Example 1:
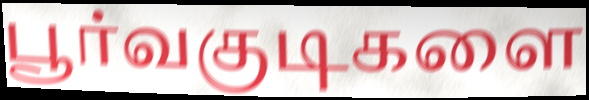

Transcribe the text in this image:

பூர்வகுடிகளை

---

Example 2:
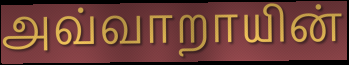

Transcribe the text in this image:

அவ்வாறாயின்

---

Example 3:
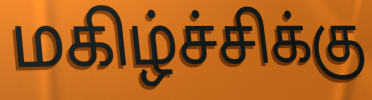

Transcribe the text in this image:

மகிழ்ச்சிக்கு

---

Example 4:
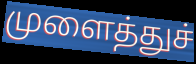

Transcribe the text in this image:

முளைத்துச்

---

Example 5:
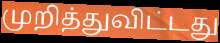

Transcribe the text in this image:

முறித்துவிட்டது